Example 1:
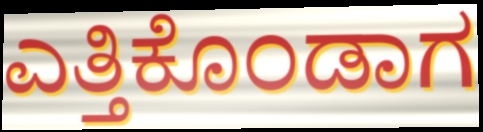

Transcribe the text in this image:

ಎತ್ತಿಕೊಂಡಾಗ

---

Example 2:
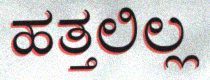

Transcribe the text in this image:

ಹತ್ತಲಿಲ್ಲ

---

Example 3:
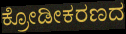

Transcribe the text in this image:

ಕ್ರೋಡೀಕರಣದ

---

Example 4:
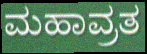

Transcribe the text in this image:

ಮಹಾವ್ರತ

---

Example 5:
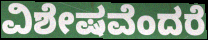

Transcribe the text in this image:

ವಿಶೇಷವೆಂದರೆ